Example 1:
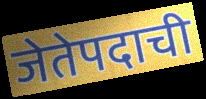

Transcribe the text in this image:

जेतेपदाची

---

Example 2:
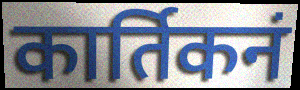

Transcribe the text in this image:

कार्तिकनं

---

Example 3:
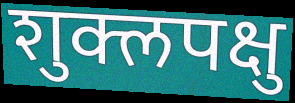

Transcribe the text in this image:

शुक्लपक्षु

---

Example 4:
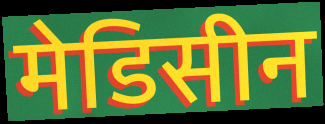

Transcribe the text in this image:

मेडिसीन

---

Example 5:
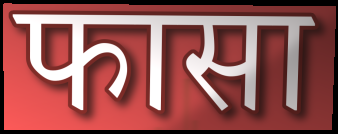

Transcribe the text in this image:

फासा